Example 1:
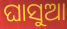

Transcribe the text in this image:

ଘାସୁଆ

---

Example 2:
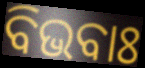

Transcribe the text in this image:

ବିଭବାଃ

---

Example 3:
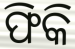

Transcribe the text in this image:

ଫିକି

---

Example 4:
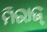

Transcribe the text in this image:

ମିରାଜ୍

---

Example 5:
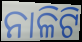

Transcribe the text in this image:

ନାଳିଟି